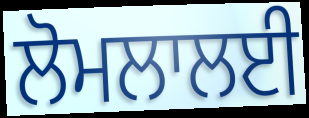
ਲੋਮਲਾਲਈ